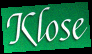
Klose